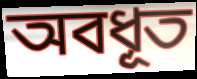
অবধূত